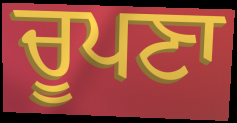
ਚੂਪਣਾ